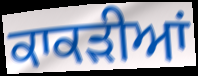
ਕਾਕੜੀਆਂ